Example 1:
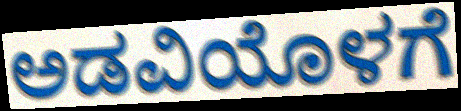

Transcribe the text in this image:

ಅಡವಿಯೊಳಗೆ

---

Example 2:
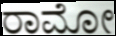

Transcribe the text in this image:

ರಾಮೋ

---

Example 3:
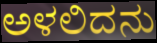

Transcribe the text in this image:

ಅಳಲಿದನು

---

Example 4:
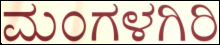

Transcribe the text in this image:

ಮಂಗಳಗಿರಿ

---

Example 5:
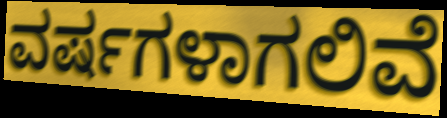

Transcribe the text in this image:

ವರ್ಷಗಳಾಗಲಿವೆ